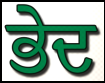
ਭੇਦ